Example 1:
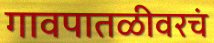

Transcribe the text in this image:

गावपातळीवरचं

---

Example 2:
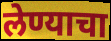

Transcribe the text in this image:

लेण्याचा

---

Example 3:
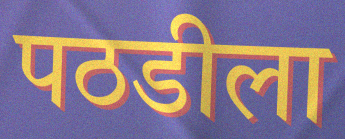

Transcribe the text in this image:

पठडीला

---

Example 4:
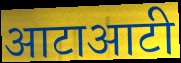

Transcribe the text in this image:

आटाआटी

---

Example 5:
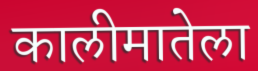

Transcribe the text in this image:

कालीमातेला